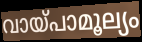
വായ്പാമൂല്യം